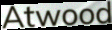
Atwood